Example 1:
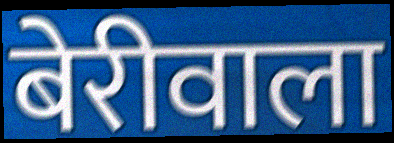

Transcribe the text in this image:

बेरीवाला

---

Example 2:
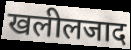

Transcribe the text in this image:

खलीलजाद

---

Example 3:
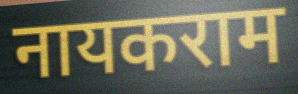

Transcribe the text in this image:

नायकराम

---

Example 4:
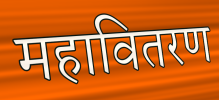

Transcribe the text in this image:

महावितरण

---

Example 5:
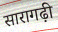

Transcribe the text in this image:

सारागढ़ी